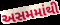
અસમમાંથી